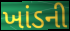
ખાંડની